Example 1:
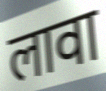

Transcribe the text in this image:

लावा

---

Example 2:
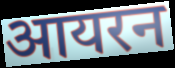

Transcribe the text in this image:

आयरन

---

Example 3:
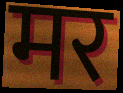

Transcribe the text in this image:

मर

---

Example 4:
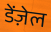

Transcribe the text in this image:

डेंज़ेल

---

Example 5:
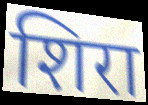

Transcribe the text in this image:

शिरा